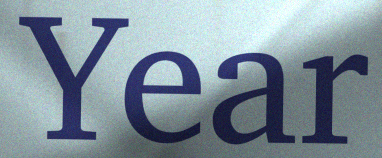
Year